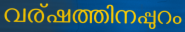
വര്ഷത്തിനപ്പുറം